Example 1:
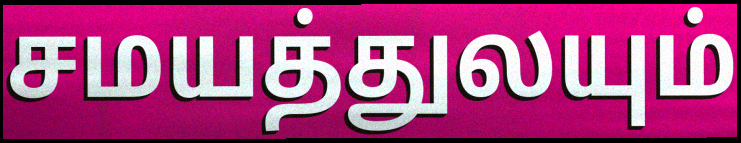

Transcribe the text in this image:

சமயத்துலயும்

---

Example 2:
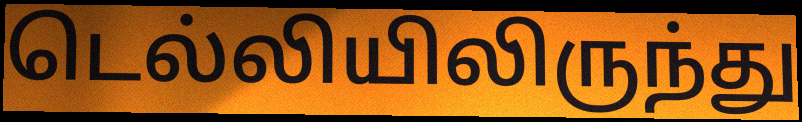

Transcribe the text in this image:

டெல்லியிலிருந்து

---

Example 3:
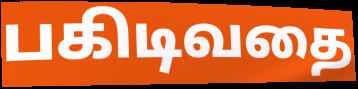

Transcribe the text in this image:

பகிடிவதை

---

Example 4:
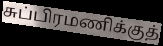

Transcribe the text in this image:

சுப்பிரமணிக்குத்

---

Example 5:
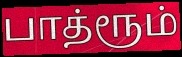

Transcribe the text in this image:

பாத்ரூம்